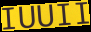
IUUII